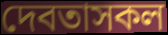
দেবতাসকল